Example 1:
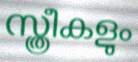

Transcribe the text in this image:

സ്ത്രീകളും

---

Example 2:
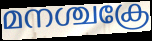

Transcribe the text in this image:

മനശ്ചക്രേ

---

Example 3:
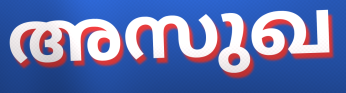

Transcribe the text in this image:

അസുഖ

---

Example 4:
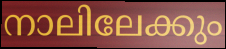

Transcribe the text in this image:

നാലിലേക്കും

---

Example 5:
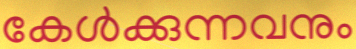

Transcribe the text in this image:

കേൾക്കുന്നവനും